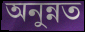
অনুন্নত